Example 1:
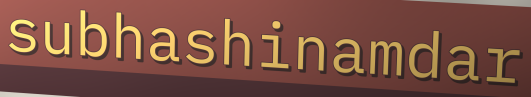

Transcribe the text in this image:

subhashinamdar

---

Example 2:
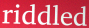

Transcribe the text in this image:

riddled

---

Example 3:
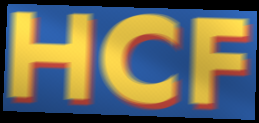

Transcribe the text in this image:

HCF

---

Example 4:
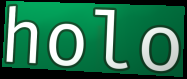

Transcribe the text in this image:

holo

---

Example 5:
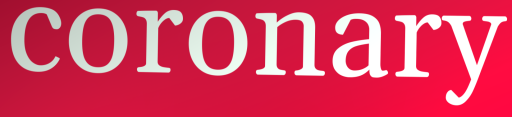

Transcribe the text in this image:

coronary